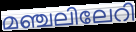
മഞ്ചലിലേറി